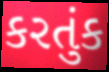
કરતુંક